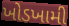
ખોડખામી